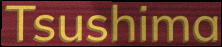
Tsushima